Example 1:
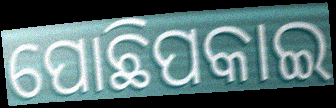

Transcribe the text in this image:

ପୋଛିପକାଇ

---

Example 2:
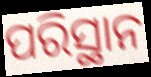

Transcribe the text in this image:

ପରିସ୍ଥାନ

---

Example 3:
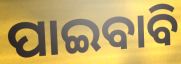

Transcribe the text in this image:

ପାଇବାବି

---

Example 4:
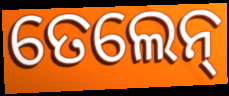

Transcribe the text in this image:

ତେଲେନ୍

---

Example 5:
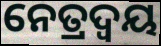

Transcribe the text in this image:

ନେତ୍ରଦ୍ଵୟ